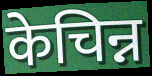
केचिन्न